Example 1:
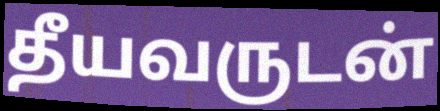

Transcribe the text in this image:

தீயவருடன்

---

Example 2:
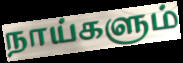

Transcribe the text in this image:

நாய்களும்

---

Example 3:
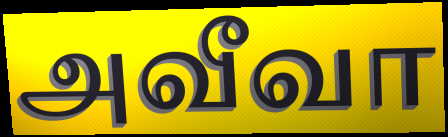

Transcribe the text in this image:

அவீவா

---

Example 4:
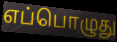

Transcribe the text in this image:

எப்பொழுது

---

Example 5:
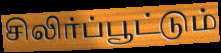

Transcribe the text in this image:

சிலிர்ப்பூட்டும்